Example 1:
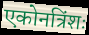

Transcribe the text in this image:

एकोनत्रिंशः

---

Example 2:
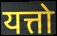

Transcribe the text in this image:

यत्तो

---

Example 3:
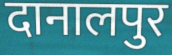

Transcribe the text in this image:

दानालपुर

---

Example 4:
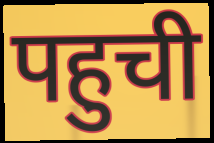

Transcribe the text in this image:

पहुची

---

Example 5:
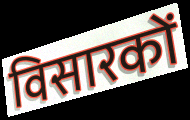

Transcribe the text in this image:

विसारकों